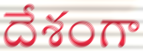
దేశంగా